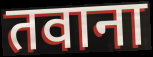
तवाना